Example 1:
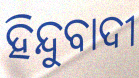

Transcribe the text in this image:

ହିନ୍ଦୁବାଦୀ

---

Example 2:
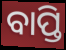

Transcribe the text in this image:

ବାପ୍ତି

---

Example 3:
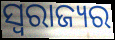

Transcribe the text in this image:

ସ୍ବରାଜ୍ୟର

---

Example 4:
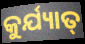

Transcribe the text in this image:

କୁର୍ଯ୍ୟାତ୍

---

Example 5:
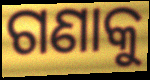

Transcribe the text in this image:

ଗଣାକୁ